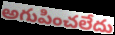
అగుపించలేదు